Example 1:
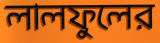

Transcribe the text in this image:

লালফুলের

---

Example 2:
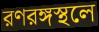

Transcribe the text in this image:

রণরঙ্গস্থলে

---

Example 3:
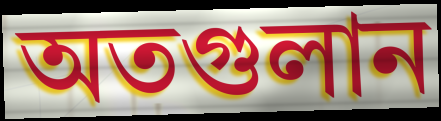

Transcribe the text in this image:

অতগুলান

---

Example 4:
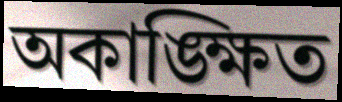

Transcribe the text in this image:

অকাঙ্ক্ষিত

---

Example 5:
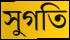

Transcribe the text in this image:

সুগতি